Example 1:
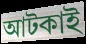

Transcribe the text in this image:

আটকাই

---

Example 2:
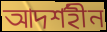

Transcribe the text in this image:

আদৰ্শহীন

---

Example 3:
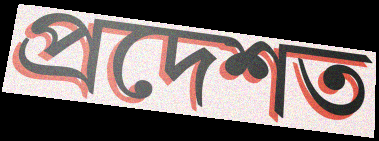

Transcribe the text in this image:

প্ৰদেশত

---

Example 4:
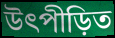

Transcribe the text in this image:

উৎপীড়িত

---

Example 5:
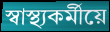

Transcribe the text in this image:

স্বাস্থ্যকৰ্মীয়ে